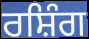
ਰਸ਼ਿੰਗ